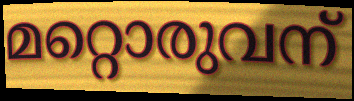
മറ്റൊരുവന്